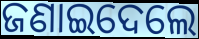
ଜଣାଇଦେଲେ